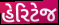
હેરિટેજ